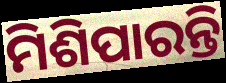
ମିଶିପାରନ୍ତି